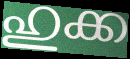
ഹുക്ക